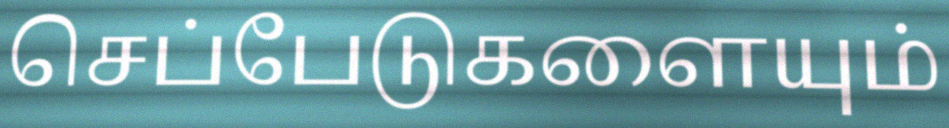
செப்பேடுகளையும்